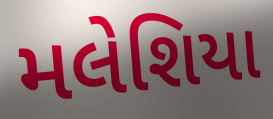
મલેશિયા